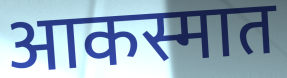
आकस्मात